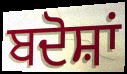
ਬਦੋਸ਼ਾਂ